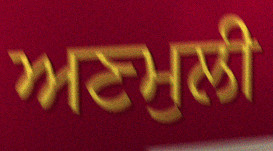
ਅਣਮੁਲੀ